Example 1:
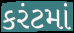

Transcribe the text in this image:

કરંટમાં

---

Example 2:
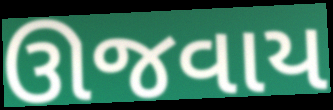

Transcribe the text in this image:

ઊજવાય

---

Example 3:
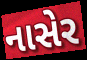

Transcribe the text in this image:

નાસેર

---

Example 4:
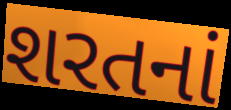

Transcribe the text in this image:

શરતનાં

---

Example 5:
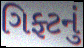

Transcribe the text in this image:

ગિફ્ટનું